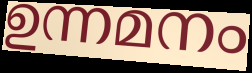
ഉന്നമനം